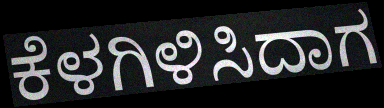
ಕೆಳಗಿಳಿಸಿದಾಗ